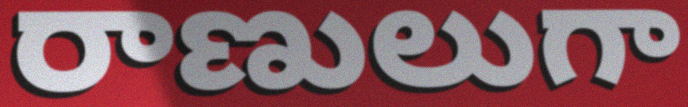
రాణులుగా